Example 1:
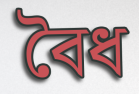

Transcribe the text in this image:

বৈধ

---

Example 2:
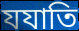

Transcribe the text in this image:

যযাতি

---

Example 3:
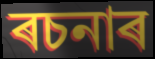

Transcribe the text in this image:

ৰচনাৰ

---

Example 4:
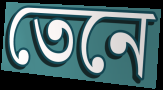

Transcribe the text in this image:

তেনে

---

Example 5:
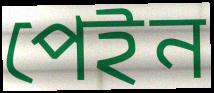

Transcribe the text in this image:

পেইন